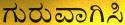
ಗುರುವಾಗಿಸಿ